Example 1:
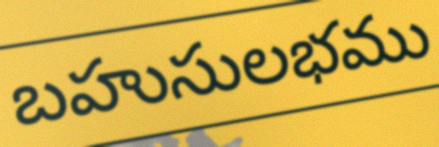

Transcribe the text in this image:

బహుసులభము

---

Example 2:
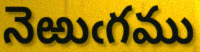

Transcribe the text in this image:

నెఱుఁగము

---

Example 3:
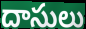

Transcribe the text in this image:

దాసులు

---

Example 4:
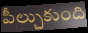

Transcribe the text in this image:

పీల్చుకుంది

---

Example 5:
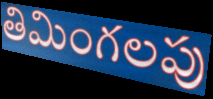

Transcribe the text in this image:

తిమింగలపు